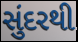
સુંદરથી